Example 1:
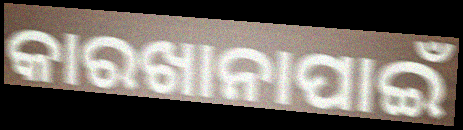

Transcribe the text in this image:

କାରଖାନାପାଇଁ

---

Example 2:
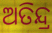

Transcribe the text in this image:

ଅତିନ୍ଦ୍ର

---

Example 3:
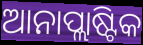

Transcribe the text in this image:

ଆନାପ୍ଲାଷ୍ଟିକ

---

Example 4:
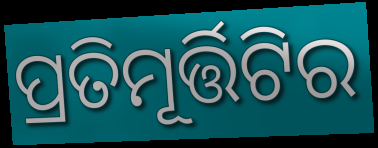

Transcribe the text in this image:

ପ୍ରତିମୂର୍ତ୍ତିଟିର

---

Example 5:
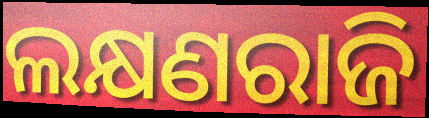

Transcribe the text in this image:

ଲକ୍ଷଣରାଜି